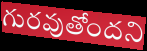
గురవుతోందని